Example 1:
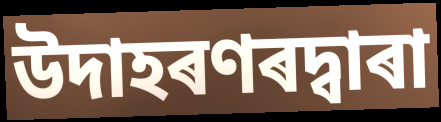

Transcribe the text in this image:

উদাহৰণৰদ্বাৰা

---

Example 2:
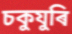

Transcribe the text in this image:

চকুযুৰি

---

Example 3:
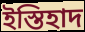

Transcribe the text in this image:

ইস্তিহাদ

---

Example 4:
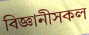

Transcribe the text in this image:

বিজ্ঞানীসকল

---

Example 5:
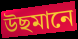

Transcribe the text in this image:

উছমানে